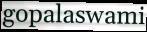
gopalaswami